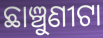
ଛାଞ୍ଚୁଣୀଟା